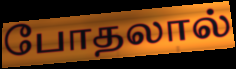
போதலால்